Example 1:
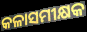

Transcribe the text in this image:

କଳାସମୀକ୍ଷକ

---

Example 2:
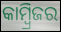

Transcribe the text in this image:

କାମ୍ବ୍ରିଜର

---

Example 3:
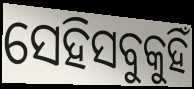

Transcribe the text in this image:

ସେହିସବୁକୁହିଁ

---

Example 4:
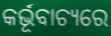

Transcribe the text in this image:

କର୍ଭୂବାଚ୍ୟରେ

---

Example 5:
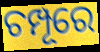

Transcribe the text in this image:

ଚମ୍ପୂରେ